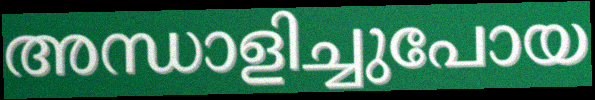
അന്ധാളിച്ചുപോയ